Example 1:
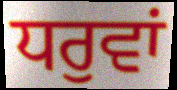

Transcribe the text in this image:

ਧਰੁਵਾਂ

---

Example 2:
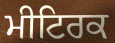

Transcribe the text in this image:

ਮੀਟਿਰਕ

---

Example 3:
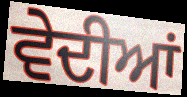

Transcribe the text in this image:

ਵੇਦੀਆਂ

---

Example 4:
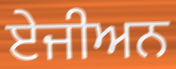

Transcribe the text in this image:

ਏਜੀਅਨ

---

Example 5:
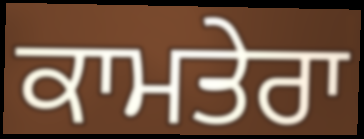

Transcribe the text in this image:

ਕਾਮਤੇਰਾ